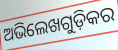
ଅଭିଲେଖଗୁଡ଼ିକର